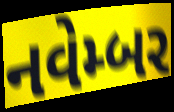
નવેમ્બર